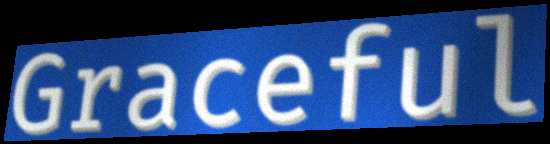
Graceful